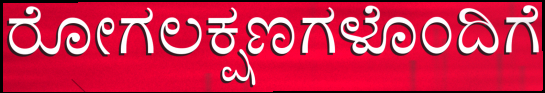
ರೋಗಲಕ್ಷಣಗಳೊಂದಿಗೆ